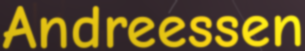
Andreessen